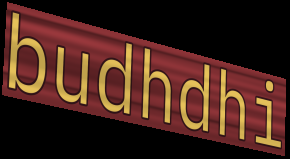
budhdhi